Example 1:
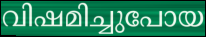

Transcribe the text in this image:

വിഷമിച്ചുപോയ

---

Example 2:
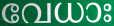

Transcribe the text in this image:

വേധാഃ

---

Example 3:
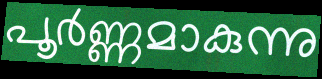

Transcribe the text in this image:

പൂർണ്ണമാകുന്നു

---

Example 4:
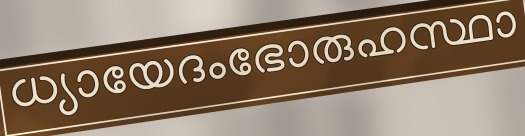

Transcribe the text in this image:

ധ്യായേദംഭോരുഹസ്ഥാ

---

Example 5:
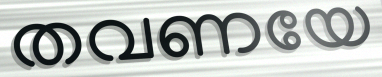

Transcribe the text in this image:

തവണയേ